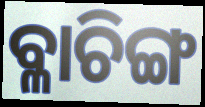
ବ୍ଳାଚିଙ୍ଗ